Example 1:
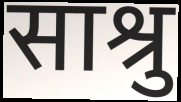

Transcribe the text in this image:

साश्रु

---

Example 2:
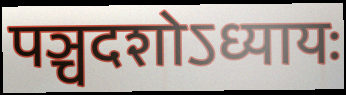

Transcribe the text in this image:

पञ्चदशोऽध्यायः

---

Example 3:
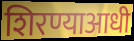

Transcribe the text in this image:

शिरण्याआधी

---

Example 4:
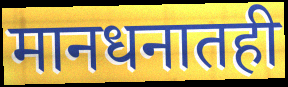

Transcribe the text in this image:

मानधनातही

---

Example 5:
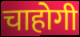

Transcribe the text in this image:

चाहोगी